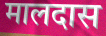
मालदास